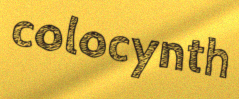
colocynth